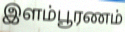
இளம்பூரணம்